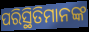
ପରିସ୍ଥିତିମାନଙ୍କ